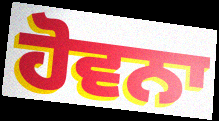
ਹੋਵਨਾ